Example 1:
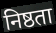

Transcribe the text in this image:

निष्ठता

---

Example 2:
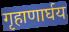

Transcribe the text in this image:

गृहाणार्घय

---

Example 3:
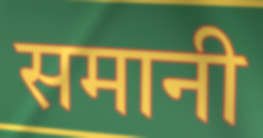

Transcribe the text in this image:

समानी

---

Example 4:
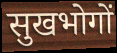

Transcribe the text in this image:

सुखभोगों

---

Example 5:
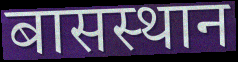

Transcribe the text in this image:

बासस्थान